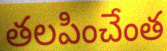
తలపించేంత